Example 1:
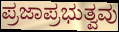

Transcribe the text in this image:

ಪ್ರಜಾಪ್ರಭುತ್ವವು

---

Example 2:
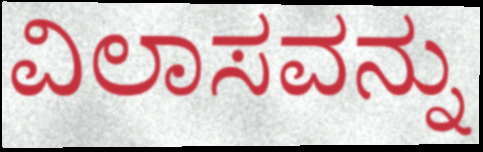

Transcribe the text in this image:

ವಿಲಾಸವನ್ನು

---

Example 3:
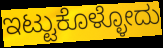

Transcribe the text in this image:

ಇಟ್ಟುಕೊಳ್ಳೋದು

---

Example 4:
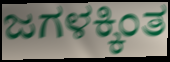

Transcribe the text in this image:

ಜಗಳಕ್ಕಿಂತ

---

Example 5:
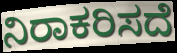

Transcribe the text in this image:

ನಿರಾಕರಿಸದೆ